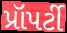
પ્રૉપર્ટી